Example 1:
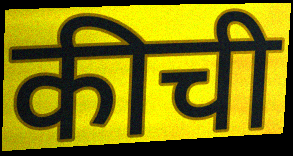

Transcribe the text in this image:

कीची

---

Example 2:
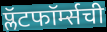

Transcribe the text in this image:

प्लॅटफॉर्म्सची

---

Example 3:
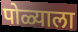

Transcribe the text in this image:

पोळ्याला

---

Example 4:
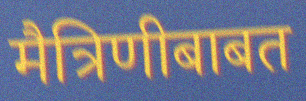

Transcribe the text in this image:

मैत्रिणीबाबत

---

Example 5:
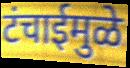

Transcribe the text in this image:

टंचाईमुळे